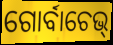
ଗୋର୍ବାଚେଭ୍